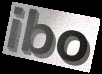
ibo